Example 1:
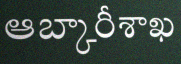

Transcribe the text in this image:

ఆబ్కారీశాఖ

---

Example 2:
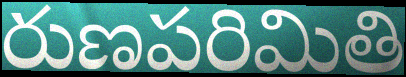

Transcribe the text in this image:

రుణపరిమితి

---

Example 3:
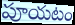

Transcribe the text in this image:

పూయటం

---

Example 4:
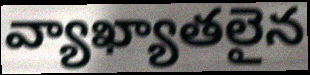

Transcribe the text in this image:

వ్యాఖ్యాతలైన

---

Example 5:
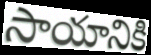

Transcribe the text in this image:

సాయానికి